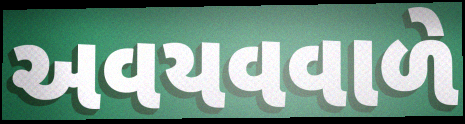
અવયવવાળે